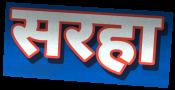
सरहा